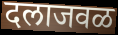
दलाजवळ